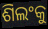
ଶିଲଂକୁ